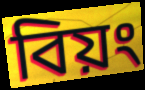
বিয়ং